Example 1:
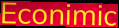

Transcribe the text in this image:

Econimic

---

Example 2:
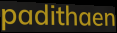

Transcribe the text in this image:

padithaen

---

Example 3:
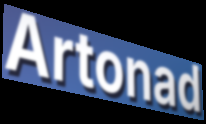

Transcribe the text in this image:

Artonad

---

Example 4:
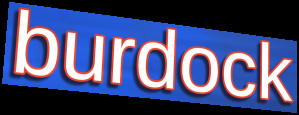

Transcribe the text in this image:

burdock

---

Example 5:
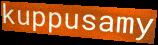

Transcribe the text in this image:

kuppusamy